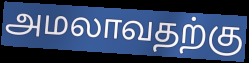
அமலாவதற்கு